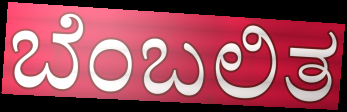
ಬೆಂಬಲಿತ